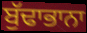
ਬੁੱਢਾਭਾਨਾ